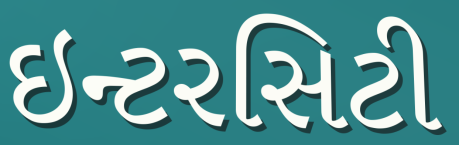
ઇન્ટરસિટી